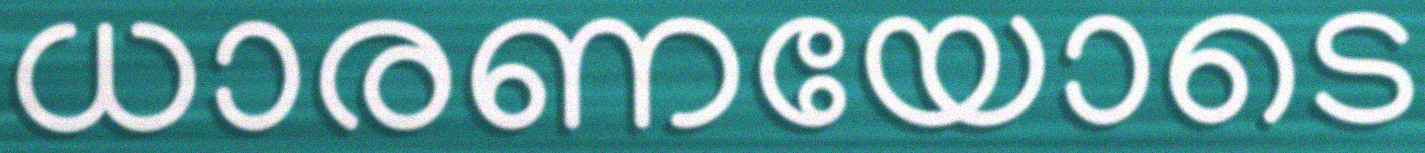
ധാരണയോടെ